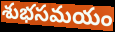
శుభసమయం